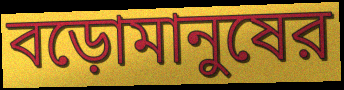
বড়োমানুষের